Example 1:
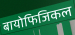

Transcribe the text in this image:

बायोफिजिकल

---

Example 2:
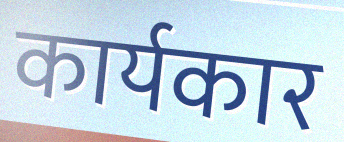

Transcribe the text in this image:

कार्यकार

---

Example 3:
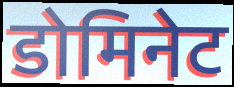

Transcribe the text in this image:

डोमिनेट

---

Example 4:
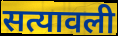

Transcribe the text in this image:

सत्यावली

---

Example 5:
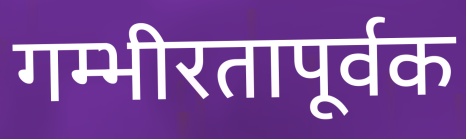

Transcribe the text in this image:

गम्भीरतापूर्वक